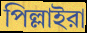
পিল্লাইরা